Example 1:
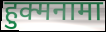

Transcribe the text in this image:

हुक्मनामा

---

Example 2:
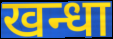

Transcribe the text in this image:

खन्धा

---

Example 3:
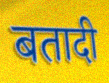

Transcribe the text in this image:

बतादी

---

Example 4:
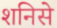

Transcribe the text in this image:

शनिसे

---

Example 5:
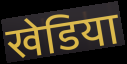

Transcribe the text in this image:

खेडिया